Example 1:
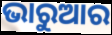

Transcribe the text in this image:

ଭାରୁଆର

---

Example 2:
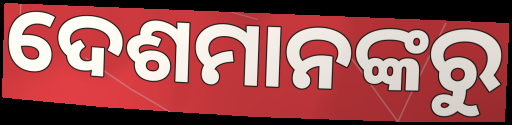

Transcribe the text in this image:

ଦେଶମାନଙ୍କରୁ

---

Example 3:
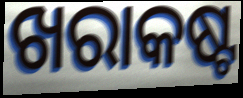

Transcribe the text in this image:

ଖରାକଷ୍ଟ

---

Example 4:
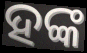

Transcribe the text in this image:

ହଙ୍କ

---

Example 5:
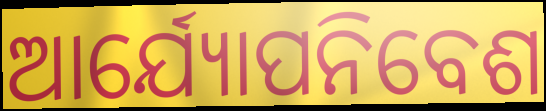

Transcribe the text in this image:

ଆର୍ଯ୍ୟୋପନିବେଶ